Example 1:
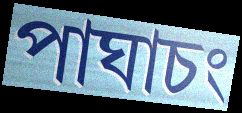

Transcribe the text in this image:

পাঘাচং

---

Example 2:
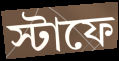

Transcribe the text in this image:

স্টাফে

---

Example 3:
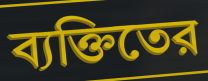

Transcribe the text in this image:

ব্যক্তিতের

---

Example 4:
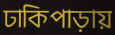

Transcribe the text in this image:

ঢাকিপাড়ায়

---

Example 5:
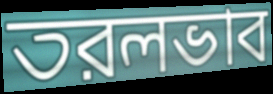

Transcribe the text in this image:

তরলভাব